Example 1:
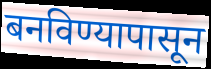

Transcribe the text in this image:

बनविण्यापासून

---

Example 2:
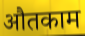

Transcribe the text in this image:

औतकाम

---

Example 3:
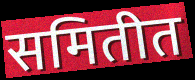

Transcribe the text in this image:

समितीत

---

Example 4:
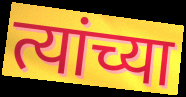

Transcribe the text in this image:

त्यांच्या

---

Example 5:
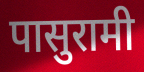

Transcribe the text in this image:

पासुरामी